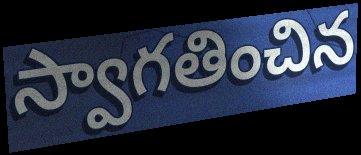
స్వాగతించిన